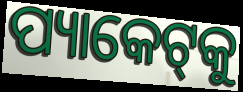
ପ୍ୟାକେଟ୍‌କୁ